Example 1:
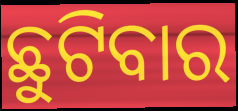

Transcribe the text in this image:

ଛୁଟିବାର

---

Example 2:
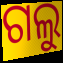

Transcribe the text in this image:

ଗଲୁ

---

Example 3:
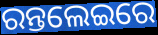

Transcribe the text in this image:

ରନ୍ତଲେଇରେ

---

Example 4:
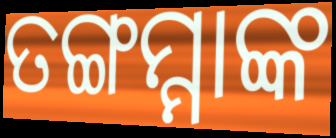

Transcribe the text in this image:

ତଙ୍ଗମ୍ମାଙ୍କ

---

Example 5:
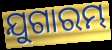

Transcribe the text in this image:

ଯୁଗାରମ୍ଭ